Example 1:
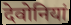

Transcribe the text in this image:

देवोनियां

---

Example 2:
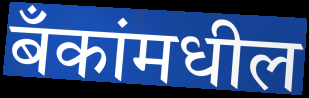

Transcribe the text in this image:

बँकांमधील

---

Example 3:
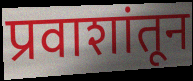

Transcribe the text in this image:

प्रवाशांतून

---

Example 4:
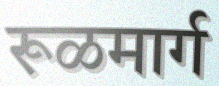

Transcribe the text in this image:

रूळमार्ग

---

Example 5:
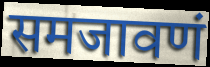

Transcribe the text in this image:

समजावणं